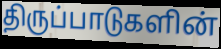
திருப்பாடுகளின்